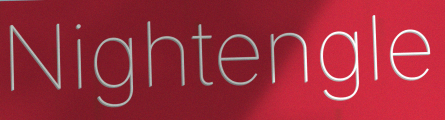
Nightengle